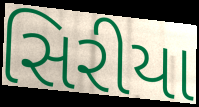
સિરીયા